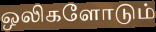
ஒலிகளோடும்